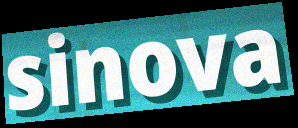
sinova